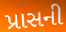
પ્રાસની